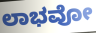
ಲಾಭವೋ